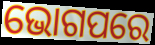
ଭୋଗପରେ